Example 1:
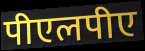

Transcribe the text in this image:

पीएलपीए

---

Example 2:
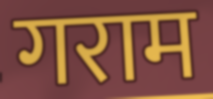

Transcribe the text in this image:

गराम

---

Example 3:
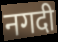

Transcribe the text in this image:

नगदी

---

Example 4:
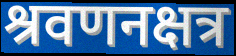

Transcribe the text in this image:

श्रवणनक्षत्र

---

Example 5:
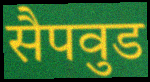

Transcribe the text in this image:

सैपवुड